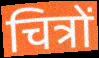
चित्रों